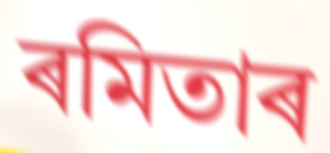
ৰমিতাৰ